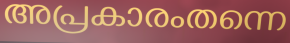
അപ്രകാരംതന്നെ